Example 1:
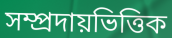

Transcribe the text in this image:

সম্প্রদায়ভিত্তিক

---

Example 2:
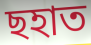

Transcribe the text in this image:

ছহাত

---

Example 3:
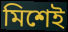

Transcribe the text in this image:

মিশেই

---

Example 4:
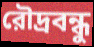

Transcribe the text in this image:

রৌদ্রবন্ধু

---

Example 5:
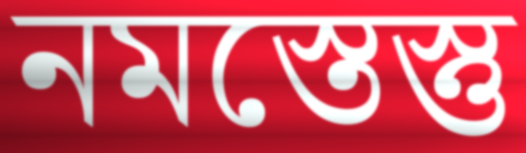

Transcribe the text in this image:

নমস্তেস্তু